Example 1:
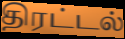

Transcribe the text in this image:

திரட்டல்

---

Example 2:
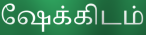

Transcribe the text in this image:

ஷேக்கிடம்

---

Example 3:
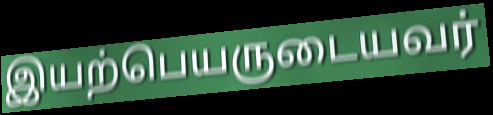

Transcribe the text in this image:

இயற்பெயருடையவர்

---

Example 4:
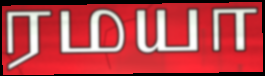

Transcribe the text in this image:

ரமயா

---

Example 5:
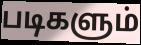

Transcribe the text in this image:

படிகளும்